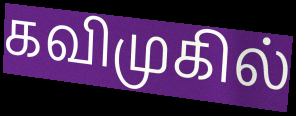
கவிமுகில்